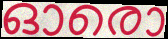
ഓരൊ